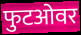
फुटओवर